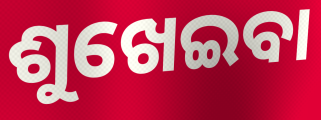
ଶୁଖେଇବା